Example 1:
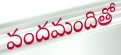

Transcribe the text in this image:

వందమందితో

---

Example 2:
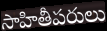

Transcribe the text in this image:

సాహితీపరులు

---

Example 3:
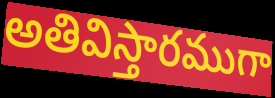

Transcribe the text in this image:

అతివిస్తారముగా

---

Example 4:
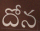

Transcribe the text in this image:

దోన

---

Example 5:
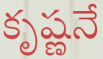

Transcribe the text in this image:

కృష్ణనే